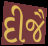
દીજૈ